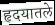
हृदयातले